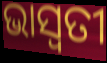
ଭାସ୍ବତୀ